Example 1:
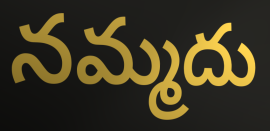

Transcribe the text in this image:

నమ్మదు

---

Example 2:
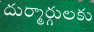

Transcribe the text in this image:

దుర్మార్గులకు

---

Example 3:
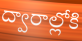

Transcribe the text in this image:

ద్వారాల్లోకి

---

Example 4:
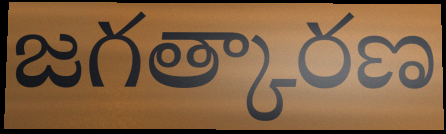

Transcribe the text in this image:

జగత్కారణ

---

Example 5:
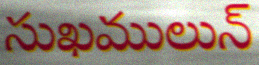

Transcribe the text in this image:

సుఖములున్